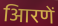
आिरणें